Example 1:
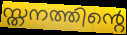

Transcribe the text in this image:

സ്തനത്തിന്റെ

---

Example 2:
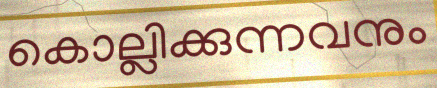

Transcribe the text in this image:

കൊല്ലിക്കുന്നവനും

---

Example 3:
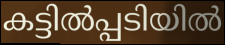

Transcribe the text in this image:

കട്ടിൽപ്പടിയിൽ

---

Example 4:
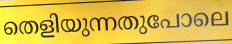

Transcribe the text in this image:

തെളിയുന്നതുപോലെ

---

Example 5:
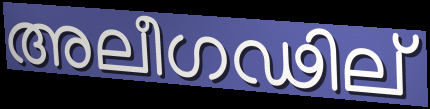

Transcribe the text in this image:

അലീഗഢില്